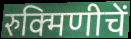
रुक्मिणीचें